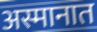
अस्मानात